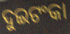
ଦୁଇଟଂକା